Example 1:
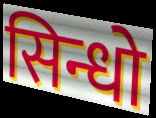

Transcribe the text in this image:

सिन्धो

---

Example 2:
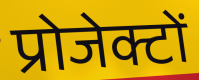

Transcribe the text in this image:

प्रोजेक्टों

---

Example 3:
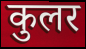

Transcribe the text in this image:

कुलर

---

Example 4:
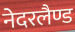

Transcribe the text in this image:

नेदरलैण्ड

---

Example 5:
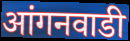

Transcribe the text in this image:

आंगनवाडी